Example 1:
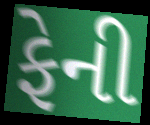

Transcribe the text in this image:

ફેની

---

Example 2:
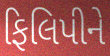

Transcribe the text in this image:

ફિલિપીને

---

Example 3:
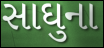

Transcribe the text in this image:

સાઘુના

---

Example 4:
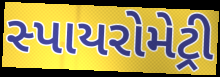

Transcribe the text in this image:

સ્પાયરોમેટ્રી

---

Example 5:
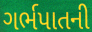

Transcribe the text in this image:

ગર્ભપાતની